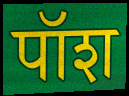
पॉश